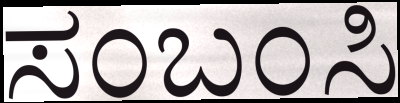
ಸಂಬಂಸಿ